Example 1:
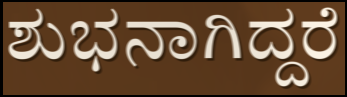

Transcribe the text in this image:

ಶುಭನಾಗಿದ್ದರೆ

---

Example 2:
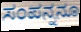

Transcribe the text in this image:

ಸಂಪನ್ನನೂ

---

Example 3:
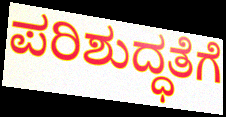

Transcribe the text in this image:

ಪರಿಶುದ್ಧತೆಗೆ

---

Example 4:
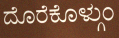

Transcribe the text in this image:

ದೊರೆಕೊಳ್ಗುಂ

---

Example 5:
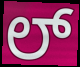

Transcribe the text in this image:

ಲ್